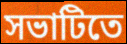
সভাটিতে